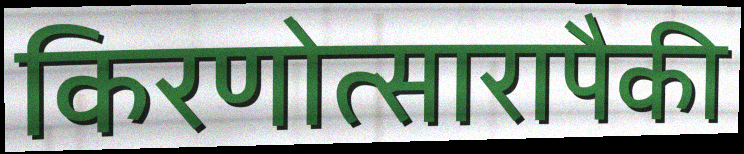
किरणोत्सारापैकी